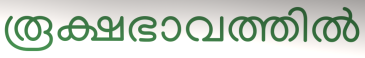
രൂക്ഷഭാവത്തിൽ